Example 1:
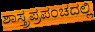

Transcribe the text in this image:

ಶಾಸ್ತ್ರಪ್ರಪಂಚದಲ್ಲಿ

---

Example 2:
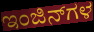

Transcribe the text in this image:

ಇಂಜಿನ್‌ಗಳ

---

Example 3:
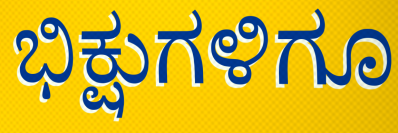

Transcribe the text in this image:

ಭಿಕ್ಷುಗಳಿಗೂ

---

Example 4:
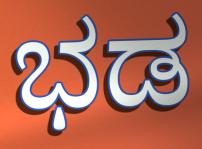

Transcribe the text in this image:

ಭಡ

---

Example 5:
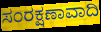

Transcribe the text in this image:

ಸಂರಕ್ಷಣಾವಾದಿ